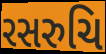
રસરુચિ